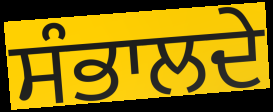
ਸੰਭਾਲਦੇ